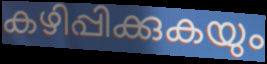
കഴിപ്പിക്കുകയും